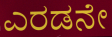
ಎರಡನೇ